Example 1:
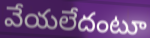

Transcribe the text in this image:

వేయలేదంటూ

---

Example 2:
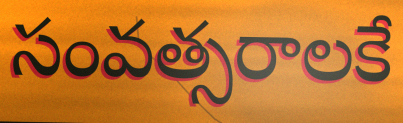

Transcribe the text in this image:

సంవత్సరాలకే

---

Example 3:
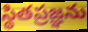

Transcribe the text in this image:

స్థితప్రజ్ఞను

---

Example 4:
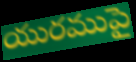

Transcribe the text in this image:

యురముపై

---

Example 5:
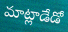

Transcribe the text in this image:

మాట్లాడేడో